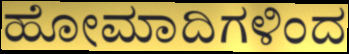
ಹೋಮಾದಿಗಳಿಂದ